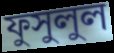
ফুসুলুল